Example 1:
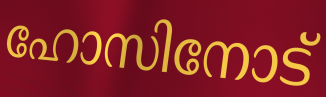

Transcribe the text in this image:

ഹോസിനോട്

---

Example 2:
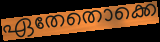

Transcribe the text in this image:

ഏതേതൊക്കെ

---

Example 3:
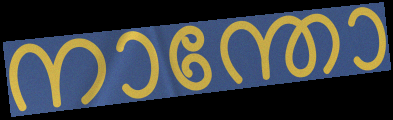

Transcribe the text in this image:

നാന്തോ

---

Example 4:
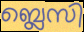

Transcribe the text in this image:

ബ്ലെസി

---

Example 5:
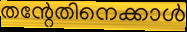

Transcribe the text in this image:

തന്റേതിനെക്കാൾ